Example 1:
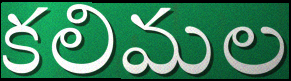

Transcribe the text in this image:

కలిమల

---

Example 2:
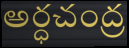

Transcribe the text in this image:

అర్ధచంద్ర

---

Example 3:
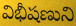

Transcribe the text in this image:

విభీషణుని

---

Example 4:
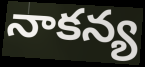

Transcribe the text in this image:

నాకన్య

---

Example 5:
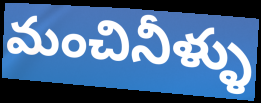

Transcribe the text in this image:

మంచినీళ్ళు